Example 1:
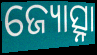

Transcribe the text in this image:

ଜ୍ୟୋତ୍ସ୍ନା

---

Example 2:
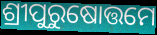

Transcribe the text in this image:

ଶ୍ରୀପୁରୁଷୋତ୍ତମେ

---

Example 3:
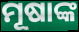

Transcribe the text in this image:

ମୂଷାଙ୍କ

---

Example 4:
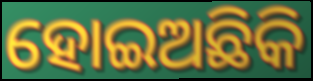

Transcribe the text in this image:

ହୋଇଅଛିକି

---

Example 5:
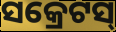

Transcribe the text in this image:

ସକ୍ରେଟସ୍